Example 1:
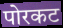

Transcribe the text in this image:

पोरकट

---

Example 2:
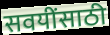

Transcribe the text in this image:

सवयींसाठी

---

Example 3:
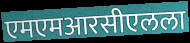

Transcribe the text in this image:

एमएमआरसीएलला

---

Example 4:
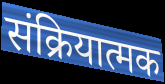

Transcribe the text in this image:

संक्रियात्मक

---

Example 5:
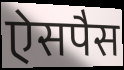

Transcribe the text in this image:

ऐसपैस